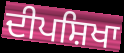
ਦੀਪਸ਼ਿਖਾ